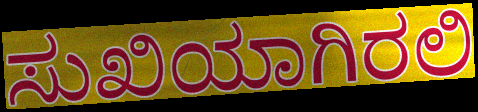
ಸುಖಿಯಾಗಿರಲಿ